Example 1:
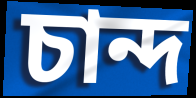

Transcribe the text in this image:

চান্দ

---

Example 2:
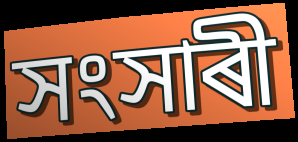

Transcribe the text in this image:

সংসাৰী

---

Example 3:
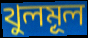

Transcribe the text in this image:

থুলমূল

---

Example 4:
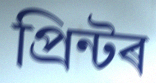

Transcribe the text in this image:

প্ৰিন্টৰ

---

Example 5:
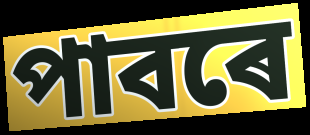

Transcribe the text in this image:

পাবৰে